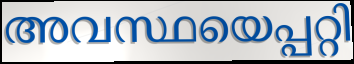
അവസ്ഥയെപ്പറ്റി